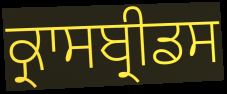
ਕ੍ਰਾਸਬ੍ਰੀਡਸ